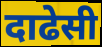
दाढेसी